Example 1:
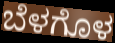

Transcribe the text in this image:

ಬೆಳಗೊಳ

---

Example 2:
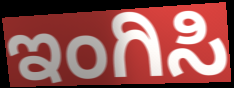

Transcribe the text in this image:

ಇಂಗಿಸಿ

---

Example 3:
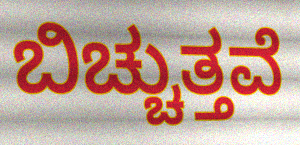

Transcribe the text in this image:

ಬಿಚ್ಚುತ್ತವೆ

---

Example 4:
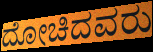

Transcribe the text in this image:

ದೋಚಿದವರು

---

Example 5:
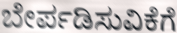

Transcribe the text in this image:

ಬೇರ್ಪಡಿಸುವಿಕೆಗೆ